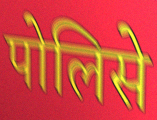
पोलिसे